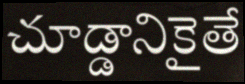
చూడ్డానికైతే